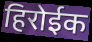
हिरोईक